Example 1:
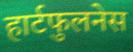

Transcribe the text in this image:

हार्टफुलनेस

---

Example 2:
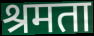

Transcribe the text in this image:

श्रमता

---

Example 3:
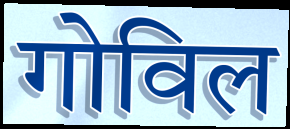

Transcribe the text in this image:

गोविल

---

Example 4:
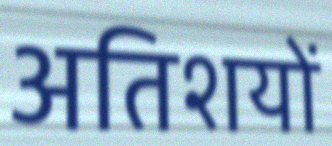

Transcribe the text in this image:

अतिशयों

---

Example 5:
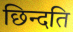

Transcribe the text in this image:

छिन्दति